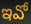
ఇవో